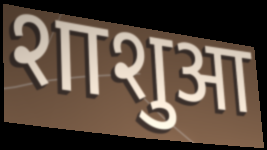
शाशुआ